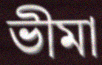
ভীমা